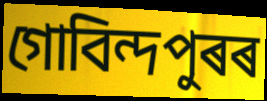
গোবিন্দপুৰৰ